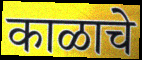
काळाचे